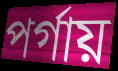
পর্গায়